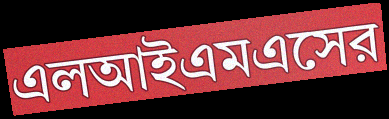
এলআইএমএসের